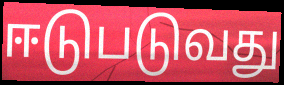
ஈடுபடுவது